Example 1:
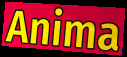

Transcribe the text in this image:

Anima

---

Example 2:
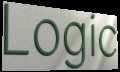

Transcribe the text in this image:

Logic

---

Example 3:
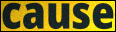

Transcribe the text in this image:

cause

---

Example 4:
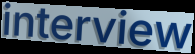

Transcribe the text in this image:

interview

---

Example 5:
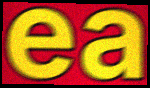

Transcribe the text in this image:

ea